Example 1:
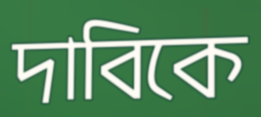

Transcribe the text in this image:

দাবিকে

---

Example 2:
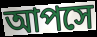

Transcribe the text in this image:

আপসে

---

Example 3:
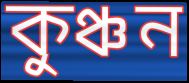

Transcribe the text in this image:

কুঞ্চন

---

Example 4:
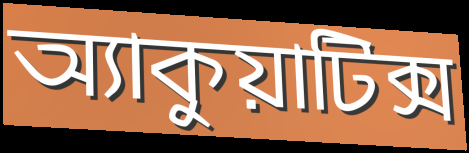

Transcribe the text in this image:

অ্যাকুয়াটিক্স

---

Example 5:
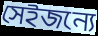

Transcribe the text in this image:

সেইজন্যে